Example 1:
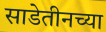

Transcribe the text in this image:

साडेतीनच्या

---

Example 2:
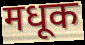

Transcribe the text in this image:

मधूक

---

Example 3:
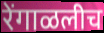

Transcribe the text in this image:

रेंगाळलीच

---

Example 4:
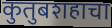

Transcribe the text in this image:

कुतुबशहाचा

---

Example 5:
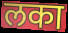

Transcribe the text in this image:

लका